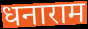
धनाराम